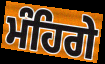
ਮੰਹਿਗੇ